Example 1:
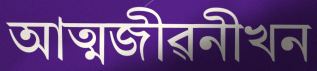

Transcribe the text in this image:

আত্মজীৱনীখন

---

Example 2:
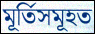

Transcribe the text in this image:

মূৰ্তিসমূহত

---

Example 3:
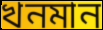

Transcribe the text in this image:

খনমান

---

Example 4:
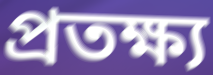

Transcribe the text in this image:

প্ৰতক্ষ্য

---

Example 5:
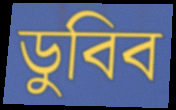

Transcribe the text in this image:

ডুবিব